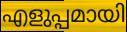
എളുപ്പമായി